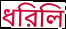
ধরিলি